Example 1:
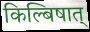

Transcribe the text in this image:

किल्बिषात्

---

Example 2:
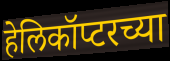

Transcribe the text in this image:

हेलिकॉप्टरच्या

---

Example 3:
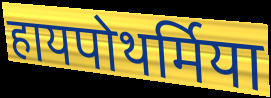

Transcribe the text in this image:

हायपोथर्मिया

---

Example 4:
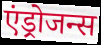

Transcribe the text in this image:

एंड्रोजन्स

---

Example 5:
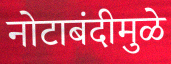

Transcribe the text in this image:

नोटाबंदीमुळे